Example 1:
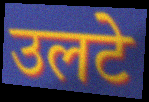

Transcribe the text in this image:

उलटे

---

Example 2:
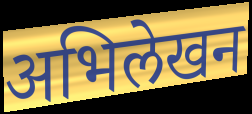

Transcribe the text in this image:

अभिलेखन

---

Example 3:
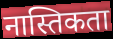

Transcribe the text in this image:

नास्तिकता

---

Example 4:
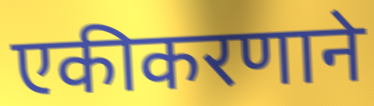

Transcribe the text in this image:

एकीकरणाने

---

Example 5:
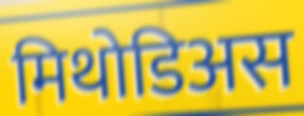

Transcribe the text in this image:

मिथोडिअस